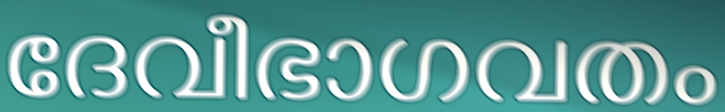
ദേവീഭാഗവതം